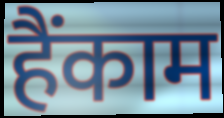
हैंकाम